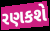
રણકશે